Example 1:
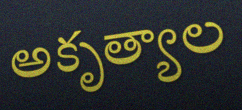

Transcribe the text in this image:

అకృత్యాల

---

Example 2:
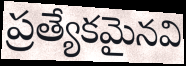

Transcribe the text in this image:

ప్రత్యేకమైనవి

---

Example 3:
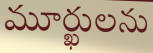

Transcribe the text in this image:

మూర్ఖులను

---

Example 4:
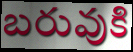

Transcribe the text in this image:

బరువుకి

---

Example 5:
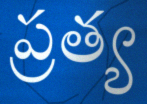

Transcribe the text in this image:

ప్రత్య